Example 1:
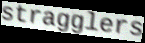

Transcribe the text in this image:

stragglers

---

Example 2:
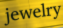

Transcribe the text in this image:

jewelry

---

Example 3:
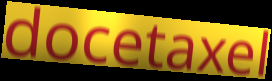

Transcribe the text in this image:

docetaxel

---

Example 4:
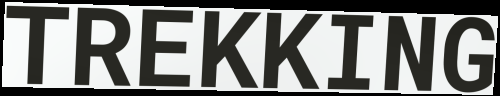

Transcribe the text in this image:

TREKKING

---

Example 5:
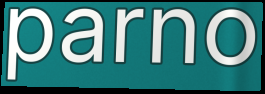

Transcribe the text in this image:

parno